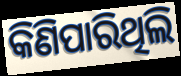
କିଣିପାରିଥିଲି